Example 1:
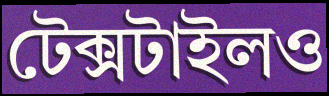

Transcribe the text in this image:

টেক্সটাইলও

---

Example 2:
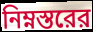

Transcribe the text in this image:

নিম্নস্তরের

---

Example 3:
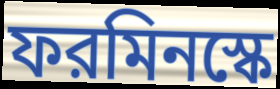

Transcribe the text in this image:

ফরমিনস্কে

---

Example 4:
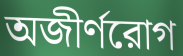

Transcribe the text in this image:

অজীর্ণরোগ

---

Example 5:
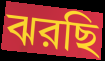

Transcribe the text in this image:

ঝরছি